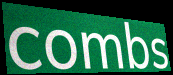
combs